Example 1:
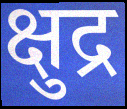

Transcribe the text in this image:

क्षुद्र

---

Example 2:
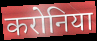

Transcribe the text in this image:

करोनिया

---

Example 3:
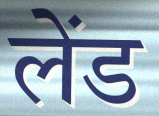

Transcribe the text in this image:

लेंड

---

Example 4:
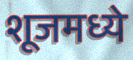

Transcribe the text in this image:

शूजमध्ये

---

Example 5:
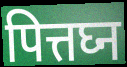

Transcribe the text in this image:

पित्तघ्न